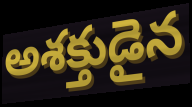
అశక్తుడైన